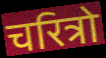
चरित्रो